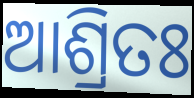
ଆଶ୍ରିତଃ